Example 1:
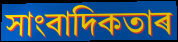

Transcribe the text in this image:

সাংবাদিকতাৰ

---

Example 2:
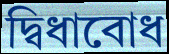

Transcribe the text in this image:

দ্বিধাবোধ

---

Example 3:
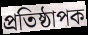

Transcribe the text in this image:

প্ৰতিষ্ঠাপক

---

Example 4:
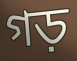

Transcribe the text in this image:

গড়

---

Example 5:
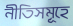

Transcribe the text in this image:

নীতিসমূহে